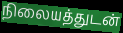
நிலையத்துடன்